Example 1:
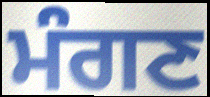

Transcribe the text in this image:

ਮੰਗਣ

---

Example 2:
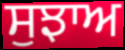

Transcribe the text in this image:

ਸੁਝਾਅ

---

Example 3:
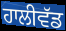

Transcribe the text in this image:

ਹਾਲੀਵੱਡ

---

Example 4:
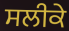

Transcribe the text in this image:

ਸਲੀਕੇ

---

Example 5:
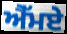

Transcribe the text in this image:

ਐੱਮਏ